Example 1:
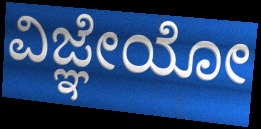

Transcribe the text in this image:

ವಿಜ್ಞೇಯೋ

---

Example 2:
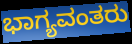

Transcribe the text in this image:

ಭಾಗ್ಯವಂತರು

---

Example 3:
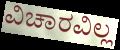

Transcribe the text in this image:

ವಿಚಾರವಿಲ್ಲ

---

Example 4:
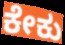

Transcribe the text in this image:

ಕೇಕು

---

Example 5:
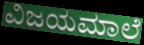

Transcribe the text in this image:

ವಿಜಯಮಾಲೆ